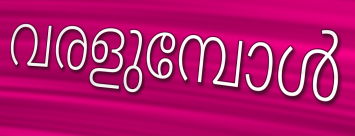
വരളുമ്പോൾ